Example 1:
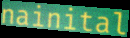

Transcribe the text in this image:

nainital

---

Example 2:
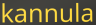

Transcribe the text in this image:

kannula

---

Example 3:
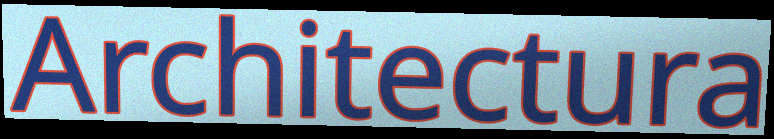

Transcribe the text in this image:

Architectura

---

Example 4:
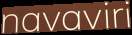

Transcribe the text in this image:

navaviri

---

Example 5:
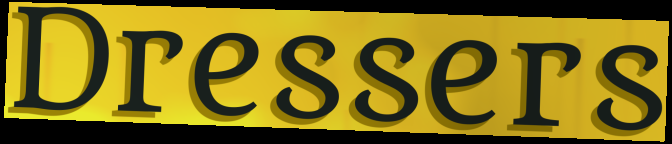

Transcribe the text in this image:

Dressers